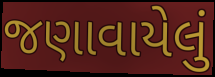
જણાવાયેલું